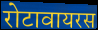
रोटावायरस